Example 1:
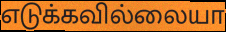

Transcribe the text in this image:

எடுக்கவில்லையா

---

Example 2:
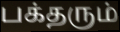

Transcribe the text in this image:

பக்தரும்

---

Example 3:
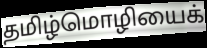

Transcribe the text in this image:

தமிழ்மொழியைக்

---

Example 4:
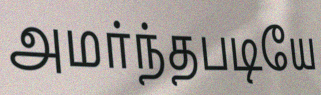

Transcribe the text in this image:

அமர்ந்தபடியே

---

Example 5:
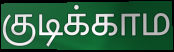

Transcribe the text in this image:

குடிக்காம